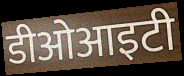
डीओआइटी